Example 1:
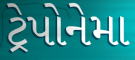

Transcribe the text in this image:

ટ્રેપોનેમા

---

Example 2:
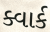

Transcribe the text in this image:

ક્વાર્ક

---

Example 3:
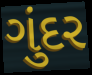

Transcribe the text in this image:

ગુંદર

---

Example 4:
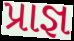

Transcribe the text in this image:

પ્રાજ્ઞ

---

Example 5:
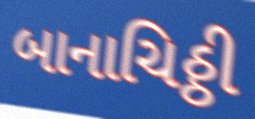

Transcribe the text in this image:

બાનાચિઠ્ઠી